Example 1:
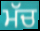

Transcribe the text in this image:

ਮੱਚ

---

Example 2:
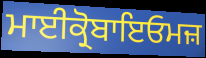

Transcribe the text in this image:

ਮਾਈਕ੍ਰੋਬਾਇਓਮਜ਼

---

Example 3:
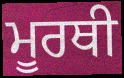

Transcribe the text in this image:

ਮੂਰਥੀ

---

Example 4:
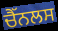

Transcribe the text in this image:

ਚੈੱਨਲਸ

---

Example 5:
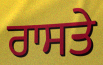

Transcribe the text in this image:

ਰਾਸਤੇ